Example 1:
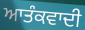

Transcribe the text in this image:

ਆਤੰਕਵਾਦੀ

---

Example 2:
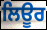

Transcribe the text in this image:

ਲਿਊਰ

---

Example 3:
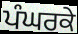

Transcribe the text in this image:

ਪੰਘਰਕੇ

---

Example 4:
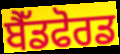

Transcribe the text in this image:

ਬੈੱਡਫੋਰਡ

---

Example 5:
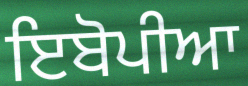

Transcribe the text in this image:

ਇਬੋਪੀਆ